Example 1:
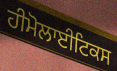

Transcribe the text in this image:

ਹੀਮੋਲਾਈਟਿਕਸ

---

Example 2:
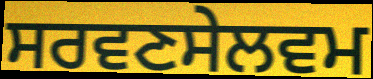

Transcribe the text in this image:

ਸਰਵਣਸੇਲਵਮ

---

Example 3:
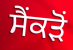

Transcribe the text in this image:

ਸੈਂਕੜੋਂ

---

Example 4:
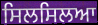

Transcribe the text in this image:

ਸਿਲਸਿਲਆ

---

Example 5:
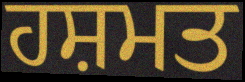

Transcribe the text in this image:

ਹਸ਼ਮਤ